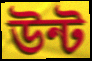
উন্ট